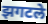
झगटले